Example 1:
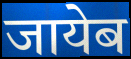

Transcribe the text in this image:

जायेब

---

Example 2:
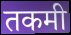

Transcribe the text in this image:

तकमी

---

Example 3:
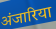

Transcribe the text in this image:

अंजारिया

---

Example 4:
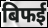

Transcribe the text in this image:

बिफई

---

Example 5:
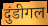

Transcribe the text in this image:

दुंडीगल